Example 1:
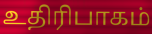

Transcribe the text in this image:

உதிரிபாகம்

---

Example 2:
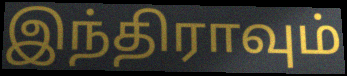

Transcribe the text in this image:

இந்திராவும்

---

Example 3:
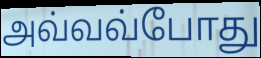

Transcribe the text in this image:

அவ்வவ்போது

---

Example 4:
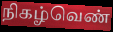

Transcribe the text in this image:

நிகழ்வெண்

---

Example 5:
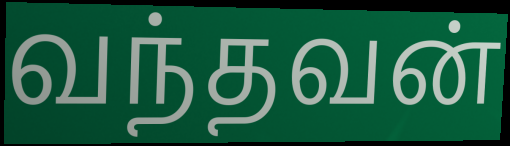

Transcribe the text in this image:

வந்தவன்